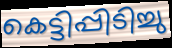
കെട്ടിപ്പിടിച്ചു